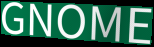
GNOME